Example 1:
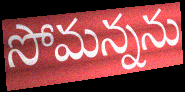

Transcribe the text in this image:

సోమన్నను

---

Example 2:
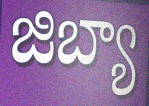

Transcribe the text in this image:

జిబ్యా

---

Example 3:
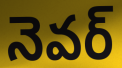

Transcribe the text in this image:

నెవర్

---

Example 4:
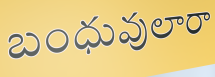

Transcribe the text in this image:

బంధువులారా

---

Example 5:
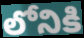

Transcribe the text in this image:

లోనికి